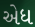
એધ